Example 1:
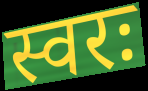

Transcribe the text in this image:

स्वरः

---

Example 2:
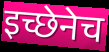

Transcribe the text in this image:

इच्छेनेच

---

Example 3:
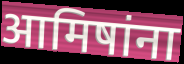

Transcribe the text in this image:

आमिषांना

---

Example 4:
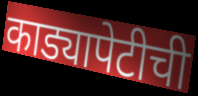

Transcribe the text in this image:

काड्यापेटीची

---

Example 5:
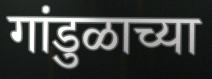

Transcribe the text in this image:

गांडुळाच्या